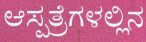
ಆಸ್ಪತ್ರೆಗಳಲ್ಲಿನ